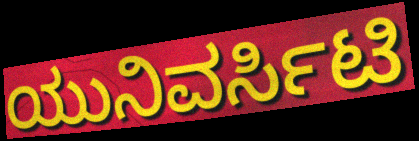
ಯುನಿವರ್ಸಿಟಿ